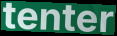
tenter